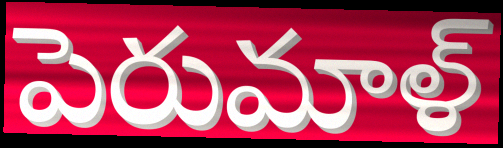
పెరుమాళ్